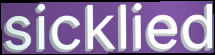
sicklied